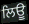
ਲਿਊ